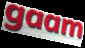
gaam